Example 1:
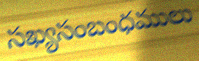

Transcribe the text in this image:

సఖ్యసంబంధములు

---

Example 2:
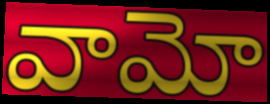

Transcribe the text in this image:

వామో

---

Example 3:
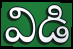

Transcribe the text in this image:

విడి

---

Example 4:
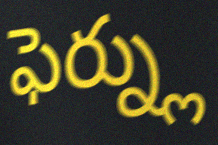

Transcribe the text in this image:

ఫెర్న్లు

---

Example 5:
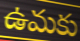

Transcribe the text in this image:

ఉమకు